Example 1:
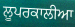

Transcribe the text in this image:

ਲੂਪਰਕਾਲੀਆ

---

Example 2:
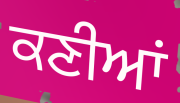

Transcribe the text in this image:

ਕਣੀਆਂ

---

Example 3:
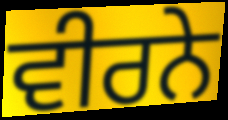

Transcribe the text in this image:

ਵੀਰਨੇ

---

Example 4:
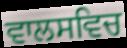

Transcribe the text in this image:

ਵਾਲਸਵਿਚ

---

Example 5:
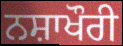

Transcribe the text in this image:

ਨਸ਼ਾਖੌਰੀ